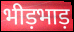
भीड़भाड़